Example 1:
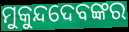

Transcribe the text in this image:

ମୁକୁନ୍ଦଦେବଙ୍କର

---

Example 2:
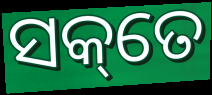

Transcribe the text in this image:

ସକ୍‌ତେ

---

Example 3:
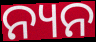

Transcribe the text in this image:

ନ୍ୟନ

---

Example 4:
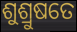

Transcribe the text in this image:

ଶୁଶ୍ରୁଷତେ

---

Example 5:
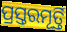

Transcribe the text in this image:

ପ୍ରସ୍ତରମୂର୍ତ୍ତି